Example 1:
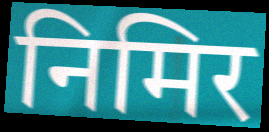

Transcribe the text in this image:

निमिर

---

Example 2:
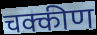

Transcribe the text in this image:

चक्कीण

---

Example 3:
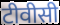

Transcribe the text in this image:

टीवीसी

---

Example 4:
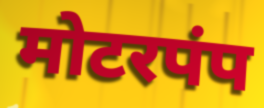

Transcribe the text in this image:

मोटरपंप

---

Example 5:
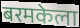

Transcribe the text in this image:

बरमकेला